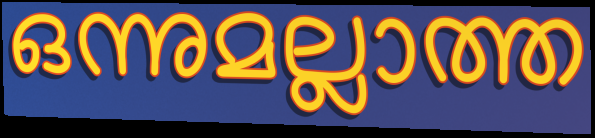
ഒന്നുമല്ലാത്ത